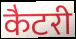
कैटरी